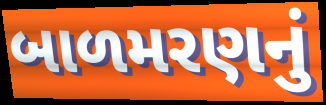
બાળમરણનું